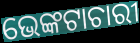
ଭେଙ୍କଟାଚାରୀ